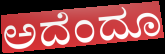
ಅದೆಂದೂ